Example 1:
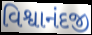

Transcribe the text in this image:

વિશ્વાનંદજી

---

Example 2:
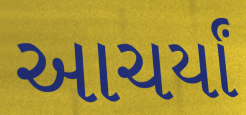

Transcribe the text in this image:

આચર્યાં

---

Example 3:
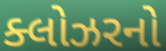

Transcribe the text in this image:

ક્લોઝરનો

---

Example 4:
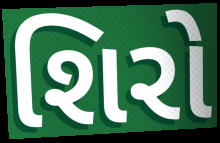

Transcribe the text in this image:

શિરો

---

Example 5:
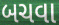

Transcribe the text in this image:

બચવા